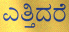
ಎತ್ತಿದರೆ